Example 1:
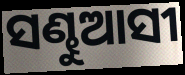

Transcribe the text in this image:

ସଣ୍ଢୁଆସୀ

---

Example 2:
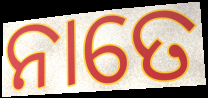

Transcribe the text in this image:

ନାତେ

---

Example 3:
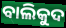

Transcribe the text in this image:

ବାଲିକୁଦ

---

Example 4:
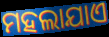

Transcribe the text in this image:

ମହଲାଯାଏ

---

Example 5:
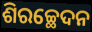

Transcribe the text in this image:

ଶିରଚ୍ଛେଦନ